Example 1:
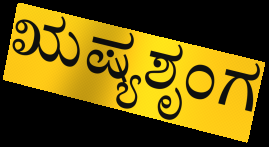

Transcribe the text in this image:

ಋಷ್ಯಶೃಂಗ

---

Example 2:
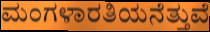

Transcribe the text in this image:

ಮಂಗಳಾರತಿಯನೆತ್ತುವೆ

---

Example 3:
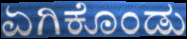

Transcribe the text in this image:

ಏಗಿಕೊಂಡು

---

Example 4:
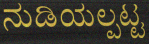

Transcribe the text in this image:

ನುಡಿಯಲ್ಪಟ್ಟ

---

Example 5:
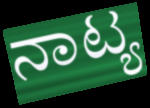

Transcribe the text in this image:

ನಾಟ್ಯ